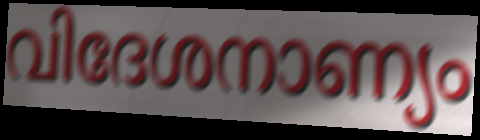
വിദേശനാണ്യം